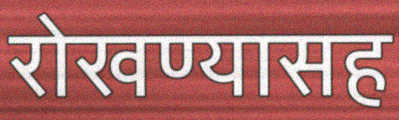
रोखण्यासह